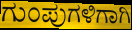
ಗುಂಪುಗಳಿಗಾಗಿ